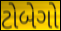
ટોબેગો